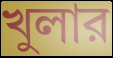
খুলার